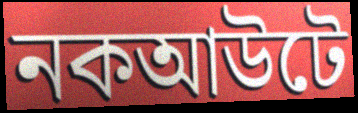
নকআউটে